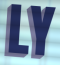
LY